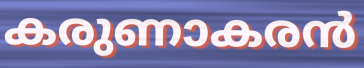
കരുണാകരൻ